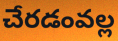
చేరడంవల్ల